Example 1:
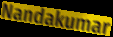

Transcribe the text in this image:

Nandakumar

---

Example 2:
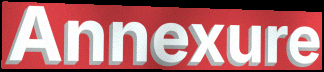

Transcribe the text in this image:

Annexure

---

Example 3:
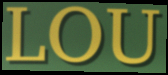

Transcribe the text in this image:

LOU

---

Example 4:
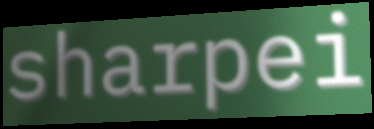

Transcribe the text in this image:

sharpei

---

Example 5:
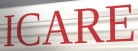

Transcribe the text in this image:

ICARE